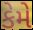
કેમે